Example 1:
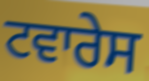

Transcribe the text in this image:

ਟਵਾਰੇਸ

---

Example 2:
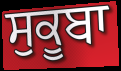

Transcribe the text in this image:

ਸੁਕੂਬਾ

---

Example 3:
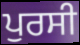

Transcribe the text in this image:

ਪੁਰਸੀ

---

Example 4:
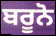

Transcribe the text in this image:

ਬਰੂਨੋ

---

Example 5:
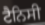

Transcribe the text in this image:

ਟੈਨਿਸੀ